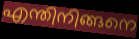
എന്തിനിങ്ങനെ